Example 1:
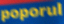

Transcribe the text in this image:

poporul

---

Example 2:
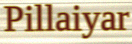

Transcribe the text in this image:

Pillaiyar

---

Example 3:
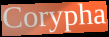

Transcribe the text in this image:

Corypha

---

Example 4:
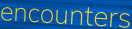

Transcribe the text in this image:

encounters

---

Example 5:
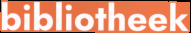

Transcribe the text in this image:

bibliotheek